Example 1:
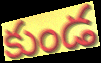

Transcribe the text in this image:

కుండ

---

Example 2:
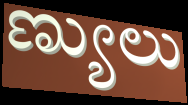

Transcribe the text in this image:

ణ్యులు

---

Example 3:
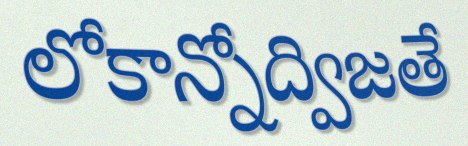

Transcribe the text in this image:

లోకాన్నోద్విజతే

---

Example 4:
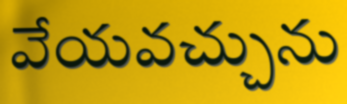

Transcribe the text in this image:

వేయవచ్చును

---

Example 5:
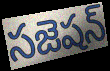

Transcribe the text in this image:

సజెషన్